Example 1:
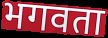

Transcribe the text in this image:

भगवता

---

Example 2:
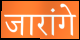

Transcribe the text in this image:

जारांगे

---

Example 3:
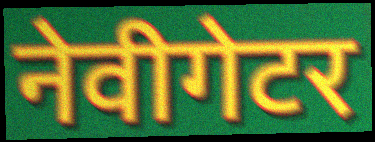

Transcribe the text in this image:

नेवीगेटर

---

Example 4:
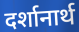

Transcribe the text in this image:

दर्शानार्थ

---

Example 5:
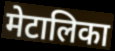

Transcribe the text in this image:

मेटालिका